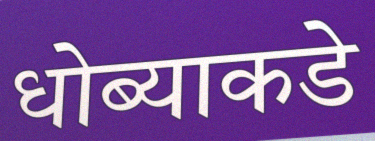
धोब्याकडे